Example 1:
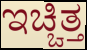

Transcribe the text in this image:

ಇಚ್ಚಿತ್ತ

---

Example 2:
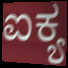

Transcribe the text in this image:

ಐಕ್ಯ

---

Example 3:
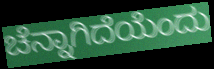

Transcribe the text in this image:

ಚೆನ್ನಾಗಿದೆಯೆಂದು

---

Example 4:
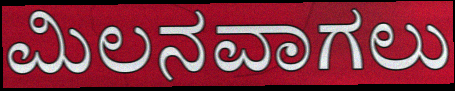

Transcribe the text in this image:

ಮಿಲನವಾಗಲು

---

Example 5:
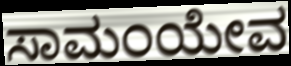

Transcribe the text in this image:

ಸಾಮಂಯೇವ